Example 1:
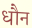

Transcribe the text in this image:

धौन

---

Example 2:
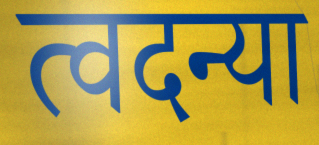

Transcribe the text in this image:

त्वदन्या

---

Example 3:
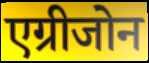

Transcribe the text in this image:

एग्रीजोन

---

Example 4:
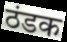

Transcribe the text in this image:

ठंडक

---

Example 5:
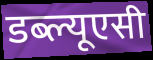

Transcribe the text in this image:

डब्ल्यूएसी